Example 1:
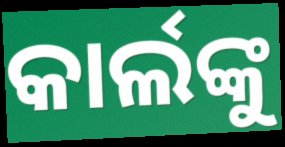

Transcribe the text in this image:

କାର୍ଲଙ୍କୁ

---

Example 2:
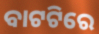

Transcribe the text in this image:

ବାଟଟିରେ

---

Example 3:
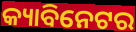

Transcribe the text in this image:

କ୍ୟାବିନେଟର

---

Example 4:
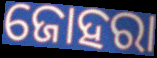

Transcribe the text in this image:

ଜୋହରା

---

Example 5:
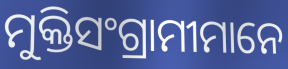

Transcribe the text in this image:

ମୁକ୍ତିସଂଗ୍ରାମୀମାନେ